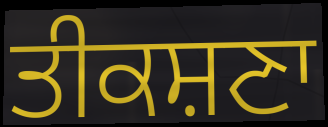
ਤੀਕਸ਼ਣਾ